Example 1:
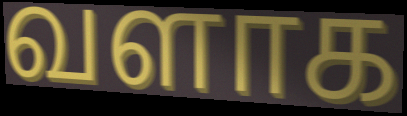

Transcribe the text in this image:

வளாக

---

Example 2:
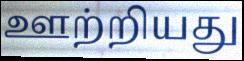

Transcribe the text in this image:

ஊற்றியது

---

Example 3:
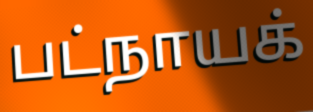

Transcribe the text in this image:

பட்நாயக்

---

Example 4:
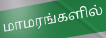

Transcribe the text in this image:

மாமரங்களில்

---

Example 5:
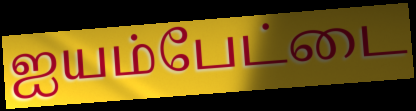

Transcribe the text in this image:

ஐயம்பேட்டை